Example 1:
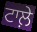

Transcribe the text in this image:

ਟਾਲ਼ੇ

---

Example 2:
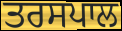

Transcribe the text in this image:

ਤਰਸਪਾਲ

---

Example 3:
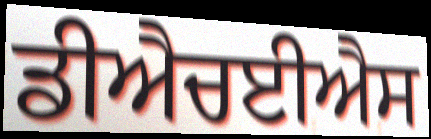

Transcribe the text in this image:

ਡੀਐਚਈਐਸ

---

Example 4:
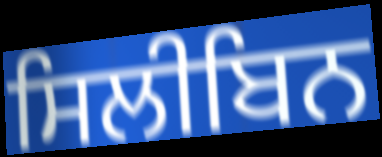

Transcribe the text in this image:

ਸਿਲੀਬਿਨ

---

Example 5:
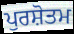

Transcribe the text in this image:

ਪੁਰਸ਼ੋਤਮ